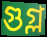
গুগ্ল